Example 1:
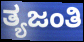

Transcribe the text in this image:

ತ್ಯಜಂತಿ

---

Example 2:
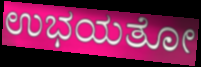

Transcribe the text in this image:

ಉಭಯತೋ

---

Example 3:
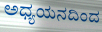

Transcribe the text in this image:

ಅಧ್ಯಯನದಿಂದ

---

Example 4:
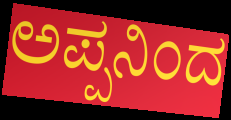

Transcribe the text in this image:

ಅಪ್ಪನಿಂದ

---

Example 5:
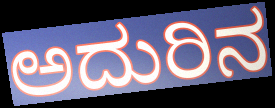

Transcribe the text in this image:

ಅದುರಿನ